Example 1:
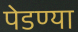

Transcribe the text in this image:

पेडण्या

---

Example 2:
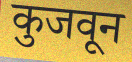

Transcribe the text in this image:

कुजवून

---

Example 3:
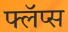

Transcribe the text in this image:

फ्लॅप्स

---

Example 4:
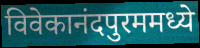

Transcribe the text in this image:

विवेकानंदपुरममध्ये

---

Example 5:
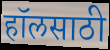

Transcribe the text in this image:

हॉलसाठी